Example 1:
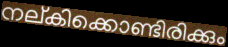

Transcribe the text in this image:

നല്കിക്കൊണ്ടിരിക്കും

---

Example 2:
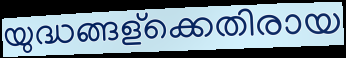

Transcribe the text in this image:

യുദ്ധങ്ങള്ക്കെതിരായ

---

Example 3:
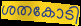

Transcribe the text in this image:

ശതകോടി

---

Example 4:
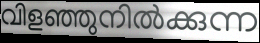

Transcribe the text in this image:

വിളഞ്ഞുനിൽക്കുന്ന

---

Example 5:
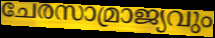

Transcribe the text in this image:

ചേരസാമ്രാജ്യവും